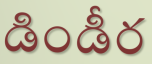
డిండీర